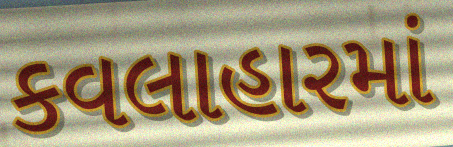
કવલાહારમાં